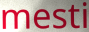
mesti